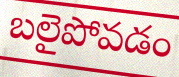
బలైపోవడం